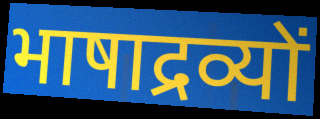
भाषाद्रव्यों